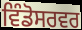
ਵਿੰਡੋਸਰਵਰ